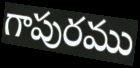
గాపురము